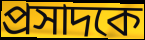
প্রসাদকে